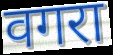
वगरा